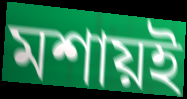
মশায়ই